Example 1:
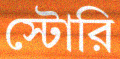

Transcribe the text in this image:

স্টোরি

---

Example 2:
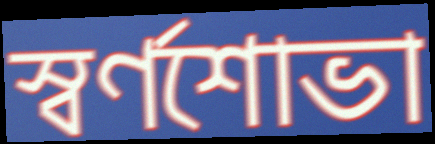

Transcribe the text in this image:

স্বর্ণশোভা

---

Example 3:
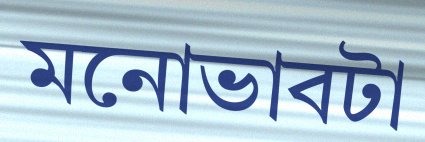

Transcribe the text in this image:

মনোভাবটা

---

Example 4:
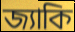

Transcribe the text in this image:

জ্যাকি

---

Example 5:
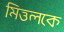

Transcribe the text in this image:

মিত্তলকে